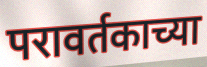
परावर्तकाच्या